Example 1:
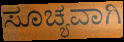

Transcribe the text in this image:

ಸೂಚ್ಯವಾಗಿ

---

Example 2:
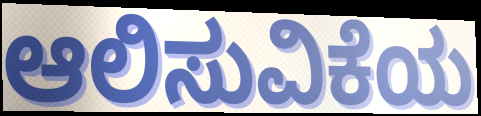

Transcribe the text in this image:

ಆಲಿಸುವಿಕೆಯ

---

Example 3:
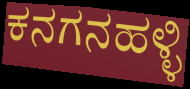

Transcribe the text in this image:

ಕನಗನಹಳ್ಳಿ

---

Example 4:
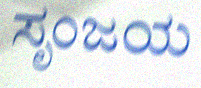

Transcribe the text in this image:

ಸೃಂಜಯ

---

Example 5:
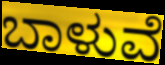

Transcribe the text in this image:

ಬಾಳುವೆ